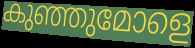
കുഞ്ഞുമോളെ